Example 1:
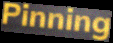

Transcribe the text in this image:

Pinning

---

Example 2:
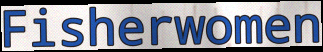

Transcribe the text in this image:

Fisherwomen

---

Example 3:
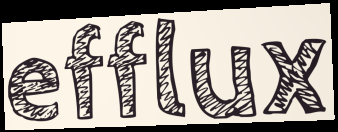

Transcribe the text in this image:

efflux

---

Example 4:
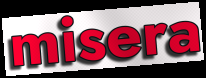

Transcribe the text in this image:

misera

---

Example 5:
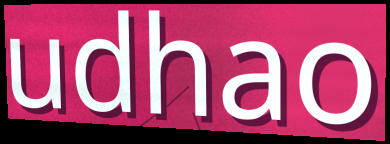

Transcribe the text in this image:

udhao